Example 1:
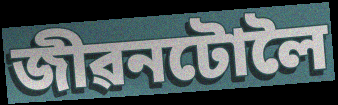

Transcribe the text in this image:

জীৱনটোলৈ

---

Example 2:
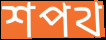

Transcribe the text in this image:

শপথ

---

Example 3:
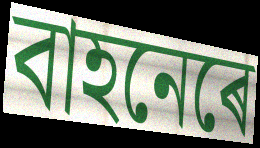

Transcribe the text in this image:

বাহনেৰে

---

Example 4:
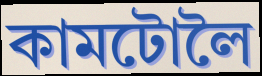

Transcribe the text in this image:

কামটোলৈ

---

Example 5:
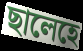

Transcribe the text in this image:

ছালেহে